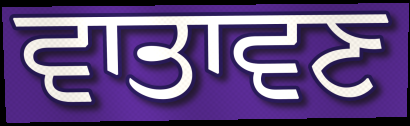
ਵਾਤਾਵਣ